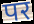
पर